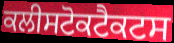
ਕਲੀਸਟੋਕਟੈਕਟਸ